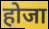
होजा